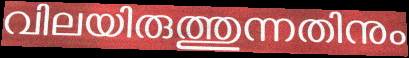
വിലയിരുത്തുന്നതിനും